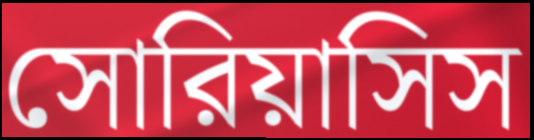
সোরিয়াসিস